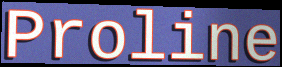
Proline